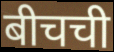
बीचची